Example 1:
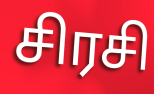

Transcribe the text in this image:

சிரசி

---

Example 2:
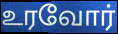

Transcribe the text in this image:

உரவோர்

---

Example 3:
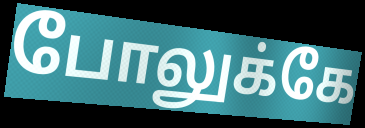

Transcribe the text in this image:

போலுக்கே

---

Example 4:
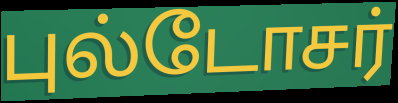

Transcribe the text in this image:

புல்டோசர்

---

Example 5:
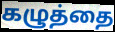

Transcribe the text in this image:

கழுத்தை